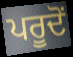
ਪਰੂਦੋਂ